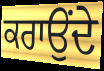
ਕਰਾਉੰਦੇ